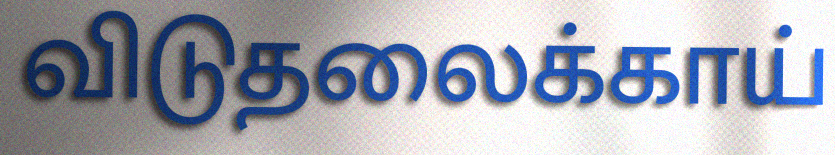
விடுதலைக்காய்